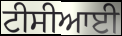
ਟੀਸੀਆਈ